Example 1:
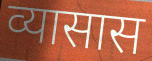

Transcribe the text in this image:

व्यासास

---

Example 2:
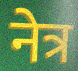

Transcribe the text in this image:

नेत्र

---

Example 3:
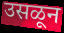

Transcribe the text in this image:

उसळून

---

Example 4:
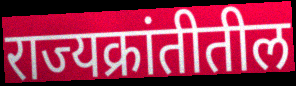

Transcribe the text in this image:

राज्यक्रांतीतील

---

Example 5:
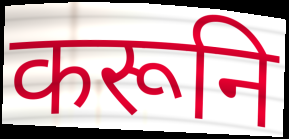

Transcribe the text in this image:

करूनि